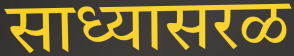
साध्यासरळ